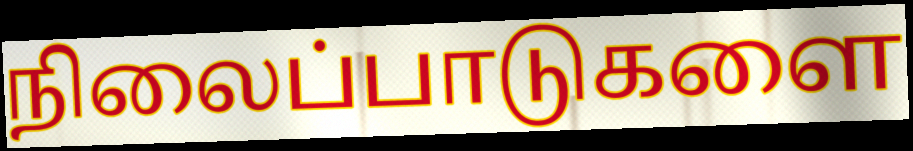
நிலைப்பாடுகளை